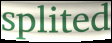
splited